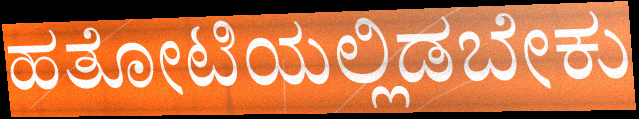
ಹತೋಟಿಯಲ್ಲಿಡಬೇಕು